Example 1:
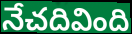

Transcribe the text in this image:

నేచదివింది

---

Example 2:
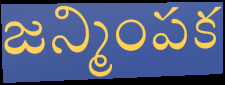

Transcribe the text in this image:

జన్మింపక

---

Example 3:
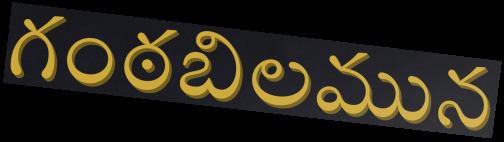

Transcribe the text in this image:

గంఠబిలమున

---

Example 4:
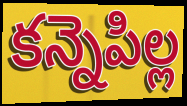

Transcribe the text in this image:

కన్నెపిల్ల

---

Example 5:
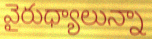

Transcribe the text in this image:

వైరుధ్యాలున్నా